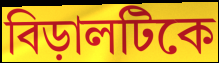
বিড়ালটিকে